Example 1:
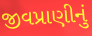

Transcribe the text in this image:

જીવપ્રાણીનું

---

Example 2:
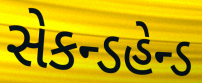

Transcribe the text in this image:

સેકન્ડહેન્ડ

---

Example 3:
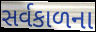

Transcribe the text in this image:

સર્વકાળના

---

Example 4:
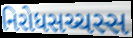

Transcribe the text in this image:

નિરોધસચ્ચસ્સ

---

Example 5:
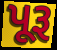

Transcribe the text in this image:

પૂરૂ